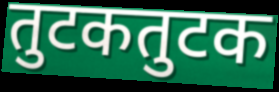
तुटकतुटक